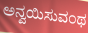
ಅನ್ವಯಿಸುವಂಥ